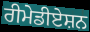
ਰੀਮੇਡੀਏਸ਼ਨ